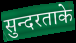
सुन्दरताके